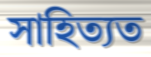
সাহিত্য়ত